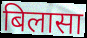
बिलासा